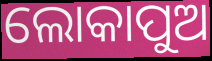
ଲୋକାପୁଅ